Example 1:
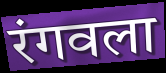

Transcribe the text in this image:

रंगवला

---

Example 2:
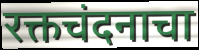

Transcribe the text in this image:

रक्तचंदनाचा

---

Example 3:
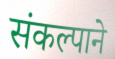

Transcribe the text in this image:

संकल्पाने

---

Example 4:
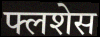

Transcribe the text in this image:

फ्लशेस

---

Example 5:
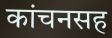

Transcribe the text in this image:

कांचनसह